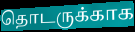
தொடருக்காக